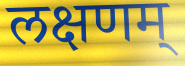
लक्षणम्